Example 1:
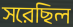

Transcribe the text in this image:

সরেছিল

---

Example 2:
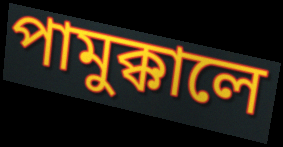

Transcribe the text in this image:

পামুক্কালে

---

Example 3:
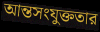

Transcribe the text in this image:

আন্তসংযুক্ততার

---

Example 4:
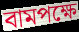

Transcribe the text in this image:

বামপক্ষে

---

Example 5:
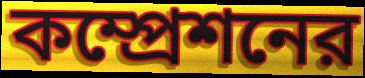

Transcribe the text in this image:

কম্প্রেশনের